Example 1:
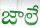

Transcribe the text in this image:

జాలే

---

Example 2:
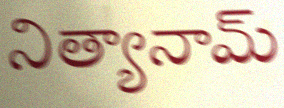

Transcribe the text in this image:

నిత్యానామ్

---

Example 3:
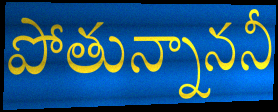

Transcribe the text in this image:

పోతున్నాననీ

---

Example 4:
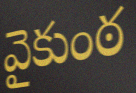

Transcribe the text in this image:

వైకుంఠ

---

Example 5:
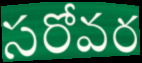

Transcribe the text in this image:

సరోవర